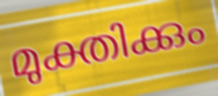
മുക്തിക്കും